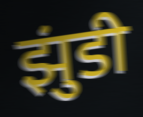
झुंडी